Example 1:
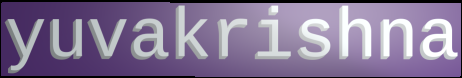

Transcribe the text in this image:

yuvakrishna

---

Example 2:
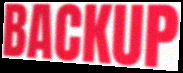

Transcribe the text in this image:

BACKUP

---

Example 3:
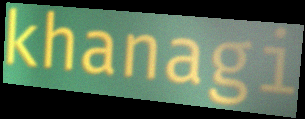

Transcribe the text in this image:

khanagi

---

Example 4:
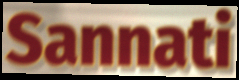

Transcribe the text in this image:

Sannati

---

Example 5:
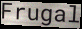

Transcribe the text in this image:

Frugal